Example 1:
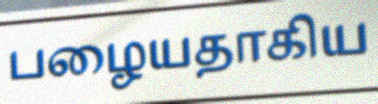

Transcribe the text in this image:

பழையதாகிய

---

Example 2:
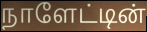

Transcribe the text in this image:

நாளேட்டின்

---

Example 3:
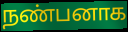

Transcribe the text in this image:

நண்பனாக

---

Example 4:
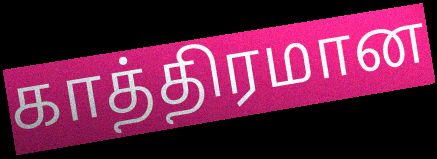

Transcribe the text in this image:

காத்திரமான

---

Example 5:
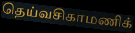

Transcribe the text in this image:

தெய்வசிகாமணிக்